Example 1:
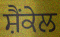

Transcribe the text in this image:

ਸ਼ੈਂਕੇਲ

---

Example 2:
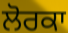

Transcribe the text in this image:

ਲੋਰਕਾ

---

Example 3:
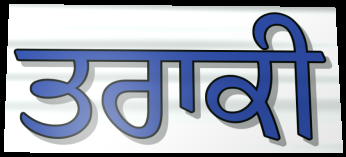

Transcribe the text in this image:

ਤਰਾਕੀ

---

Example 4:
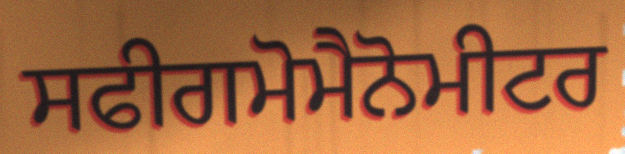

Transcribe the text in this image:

ਸਫੀਗਮੋਮੈਨੋਮੀਟਰ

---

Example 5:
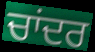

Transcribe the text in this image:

ਚਾਂਦਰ